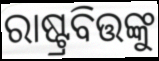
ରାଷ୍ଟ୍ରବିତ୍ତଙ୍କୁ